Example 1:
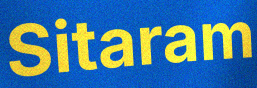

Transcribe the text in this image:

Sitaram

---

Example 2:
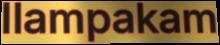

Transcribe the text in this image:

Ilampakam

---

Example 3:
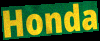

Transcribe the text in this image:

Honda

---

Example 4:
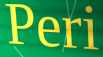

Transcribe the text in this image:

Peri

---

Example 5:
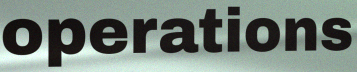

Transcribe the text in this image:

operations